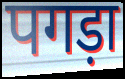
पगड़ा